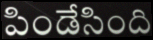
పిండేసింది